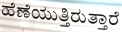
ಹೆಣೆಯುತ್ತಿರುತ್ತಾರೆ